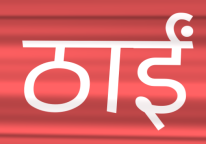
ठाईं